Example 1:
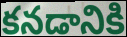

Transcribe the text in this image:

కనడానికి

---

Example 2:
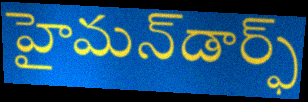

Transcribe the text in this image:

హైమన్‌డార్ఫ్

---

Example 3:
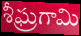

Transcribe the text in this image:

శీఘ్రగామి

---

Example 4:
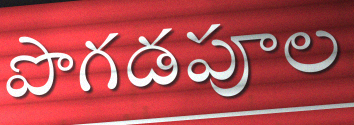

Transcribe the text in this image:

పొగడపూల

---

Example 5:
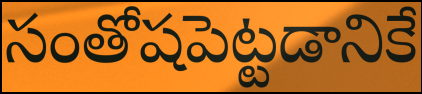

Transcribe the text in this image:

సంతోషపెట్టడానికే